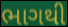
ભાગથી